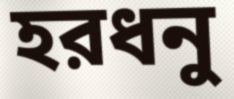
হরধনু